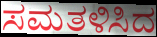
ಸಮತಳಿಸಿದ